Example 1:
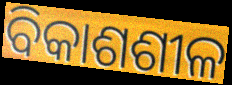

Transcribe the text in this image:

ବିକାଶଶୀଳ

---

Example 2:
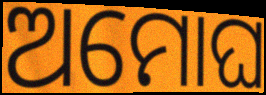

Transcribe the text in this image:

ଅମୋଘ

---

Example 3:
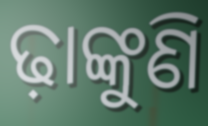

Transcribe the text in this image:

ଢ଼ାଙ୍କୁଣି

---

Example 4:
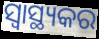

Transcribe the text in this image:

ସ୍ୱାସ୍ଥ୍ୟକର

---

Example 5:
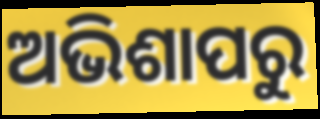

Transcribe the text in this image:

ଅଭିଶାପରୁ